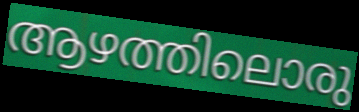
ആഴത്തിലൊരു